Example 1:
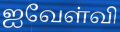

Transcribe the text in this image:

ஐவேள்வி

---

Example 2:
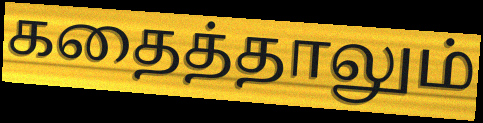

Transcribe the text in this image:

கதைத்தாலும்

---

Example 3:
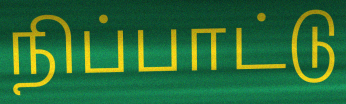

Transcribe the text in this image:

நிப்பாட்டு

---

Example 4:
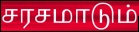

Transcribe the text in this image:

சரசமாடும்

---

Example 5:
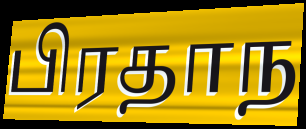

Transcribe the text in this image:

பிரதாந